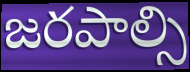
జరపాల్సి